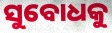
ସୁବୋଧକୁ